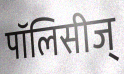
पॉलिसीज्